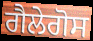
ਗੈਲੇਗੋਸ